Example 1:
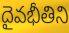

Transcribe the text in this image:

దైవభీతిని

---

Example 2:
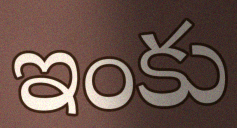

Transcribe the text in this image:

ఇంకు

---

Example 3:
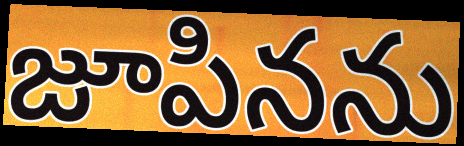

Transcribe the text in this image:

జూపినను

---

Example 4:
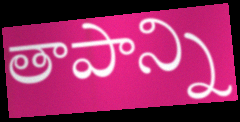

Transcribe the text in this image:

తాపాన్ని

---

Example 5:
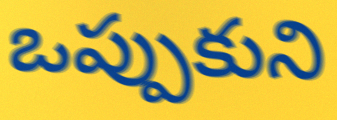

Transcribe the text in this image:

ఒప్పుకుని